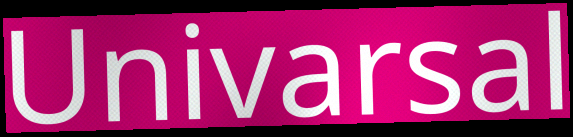
Univarsal